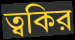
ত্বকির